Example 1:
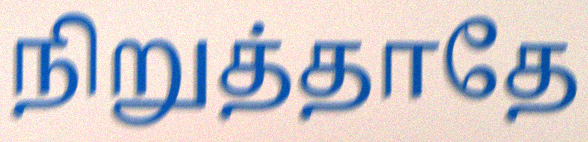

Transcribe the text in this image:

நிறுத்தாதே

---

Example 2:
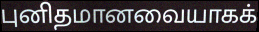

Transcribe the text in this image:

புனிதமானவையாகக்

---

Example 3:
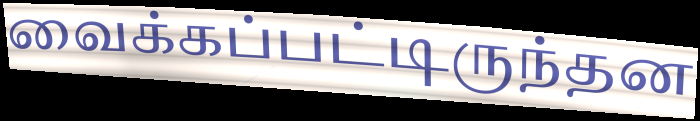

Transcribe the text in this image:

வைக்கப்பட்டிருந்தன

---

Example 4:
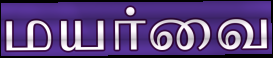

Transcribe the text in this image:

மயர்வை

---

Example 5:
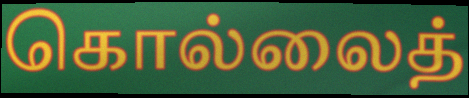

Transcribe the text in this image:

கொல்லைத்